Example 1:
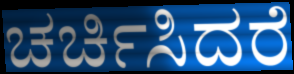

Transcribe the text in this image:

ಚರ್ಚಿಸಿದರೆ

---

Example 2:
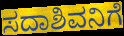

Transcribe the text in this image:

ಸದಾಶಿವನಿಗೆ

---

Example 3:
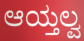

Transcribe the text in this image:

ಆಯ್ತಲ್ವ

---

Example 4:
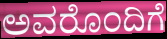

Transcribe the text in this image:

ಅವರೊಂದಿಗೆ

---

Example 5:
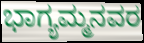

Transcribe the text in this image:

ಭಾಗ್ಯಮ್ಮನವರ